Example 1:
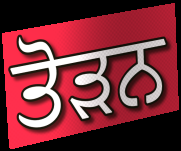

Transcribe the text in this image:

ਤੋੜਨ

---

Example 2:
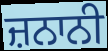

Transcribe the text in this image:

ਜ਼ਨਾਨੀ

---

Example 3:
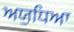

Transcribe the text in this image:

ਅਯੁਧਿਆ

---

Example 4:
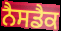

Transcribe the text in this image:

ਨੈਸਡੈਕ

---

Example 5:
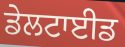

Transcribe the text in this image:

ਡੇਲਟਾਈਡ